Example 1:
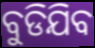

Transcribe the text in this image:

ବୁଡିଯିବ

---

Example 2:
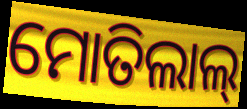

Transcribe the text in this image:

ମୋତିଲାଲ୍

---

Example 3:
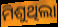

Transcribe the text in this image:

ମିଶୁଥିଲା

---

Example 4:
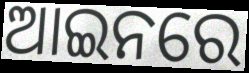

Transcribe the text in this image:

ଆଇନରେ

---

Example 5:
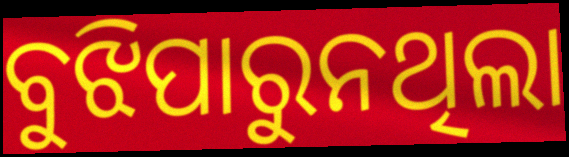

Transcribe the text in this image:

ବୁଝିପାରୁନଥିଲା